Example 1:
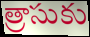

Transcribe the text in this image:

త్రాసుకు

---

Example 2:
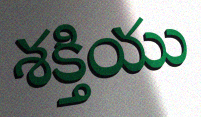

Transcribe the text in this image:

శక్తియు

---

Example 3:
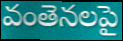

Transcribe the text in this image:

వంతెనలపై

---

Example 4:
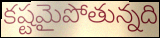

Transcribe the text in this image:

కష్టమైపోతున్నది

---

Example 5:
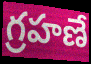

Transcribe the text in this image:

గ్రహణే